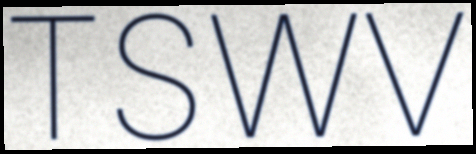
TSWV